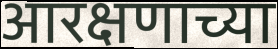
आरक्षणाच्या